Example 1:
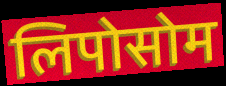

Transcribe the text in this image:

लिपोसोम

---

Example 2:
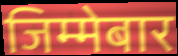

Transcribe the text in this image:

जिम्मेबार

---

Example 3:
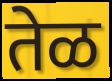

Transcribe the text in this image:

तेळ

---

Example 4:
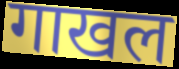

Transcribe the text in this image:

गाखल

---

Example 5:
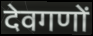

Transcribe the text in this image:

देवगणों